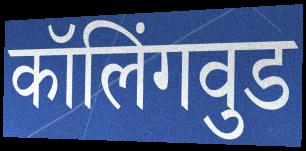
कॉलिंगवुड